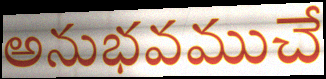
అనుభవముచే